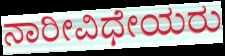
ನಾರೀವಿಧೇಯರು